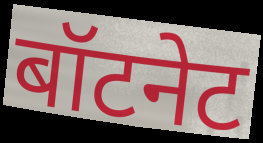
बॉटनेट